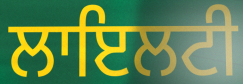
ਲਾਇਲਟੀ